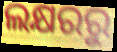
ଲକ୍ଷରରୁ